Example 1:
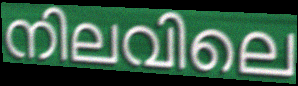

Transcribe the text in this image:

നിലവിലെ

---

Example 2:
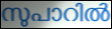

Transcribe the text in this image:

സുപാറിൽ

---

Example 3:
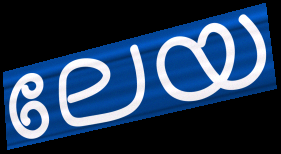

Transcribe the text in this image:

ലേയ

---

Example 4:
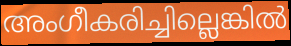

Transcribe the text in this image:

അംഗീകരിച്ചില്ലെങ്കിൽ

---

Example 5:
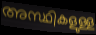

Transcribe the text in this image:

അസ്ഥികളുള്ള